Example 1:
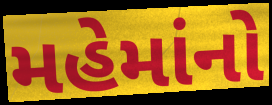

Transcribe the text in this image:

મહેમાંનો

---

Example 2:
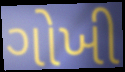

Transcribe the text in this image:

ગોખી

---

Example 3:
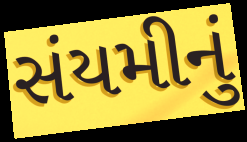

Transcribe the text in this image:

સંયમીનું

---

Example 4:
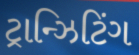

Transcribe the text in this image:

ટ્રાન્ઝિટિંગ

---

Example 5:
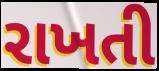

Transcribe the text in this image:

રાખતી